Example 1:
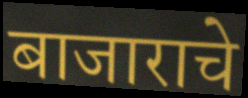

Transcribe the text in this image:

बाजाराचे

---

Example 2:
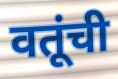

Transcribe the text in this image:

वतूंची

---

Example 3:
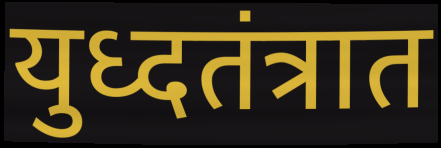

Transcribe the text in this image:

युध्दतंत्रात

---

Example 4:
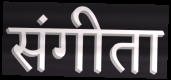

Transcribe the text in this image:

संगीता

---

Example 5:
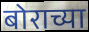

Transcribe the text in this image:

बोराच्या